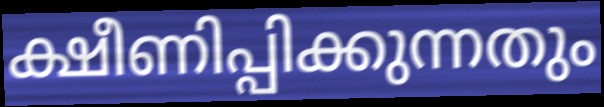
ക്ഷീണിപ്പിക്കുന്നതും